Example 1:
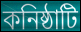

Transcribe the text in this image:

কনিষ্ঠাটি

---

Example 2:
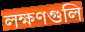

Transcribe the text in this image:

লক্ষণগুলি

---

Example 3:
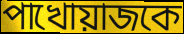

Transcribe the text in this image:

পাখোয়াজকে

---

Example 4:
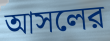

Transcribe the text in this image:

আসলের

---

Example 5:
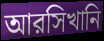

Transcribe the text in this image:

আরসিখানি